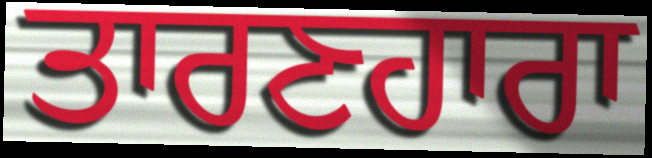
ਤਾਰਣਹਾਰਾ